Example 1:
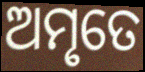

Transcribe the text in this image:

ଅମୃତେ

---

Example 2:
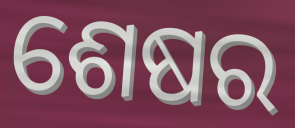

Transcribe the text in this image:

ଶେଷର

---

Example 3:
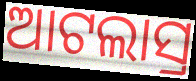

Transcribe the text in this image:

ଆଟଲାସ୍ର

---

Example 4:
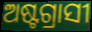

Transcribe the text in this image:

ଅଷ୍ଟଗ୍ରାସୀ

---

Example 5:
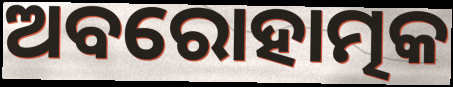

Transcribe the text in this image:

ଅବରୋହାତ୍ମକ